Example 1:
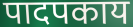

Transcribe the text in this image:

पादपकाय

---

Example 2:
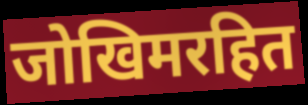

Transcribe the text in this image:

जोखिमरहित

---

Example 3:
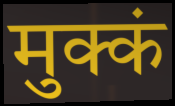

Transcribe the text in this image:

मुक्कं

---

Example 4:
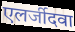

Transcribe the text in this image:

एलर्जीदवा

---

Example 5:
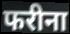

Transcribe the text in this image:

फरीना